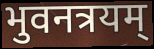
भुवनत्रयम्